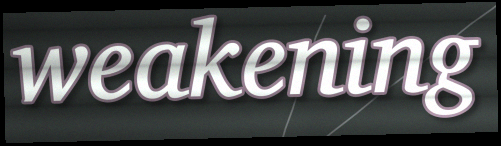
weakening